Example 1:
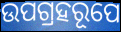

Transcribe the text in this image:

ଉପଗ୍ରହରୂପେ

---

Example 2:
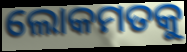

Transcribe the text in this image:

ଲୋକମତକୁ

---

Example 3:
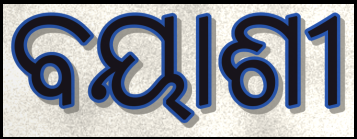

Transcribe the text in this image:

ବୟାଶୀ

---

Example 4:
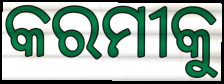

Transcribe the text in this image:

କରମୀକୁ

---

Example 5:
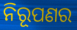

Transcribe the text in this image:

ନିରୂପଣର